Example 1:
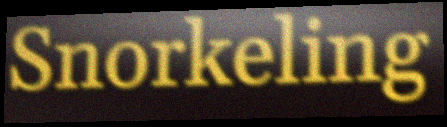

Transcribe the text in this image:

Snorkeling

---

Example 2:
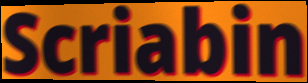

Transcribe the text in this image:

Scriabin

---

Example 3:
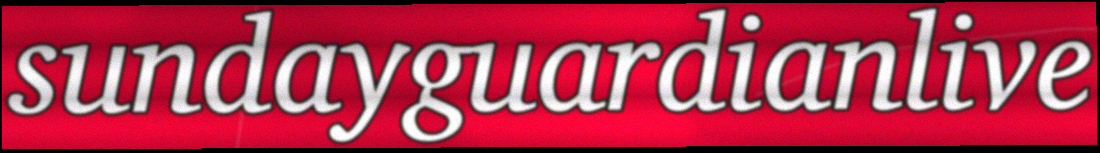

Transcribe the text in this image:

sundayguardianlive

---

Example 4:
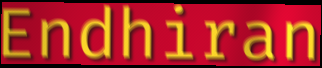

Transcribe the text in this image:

Endhiran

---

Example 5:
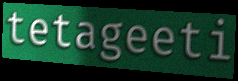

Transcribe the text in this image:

tetageeti